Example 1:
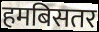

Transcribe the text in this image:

हमबिसतर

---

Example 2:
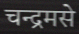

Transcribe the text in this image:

चन्द्रमसे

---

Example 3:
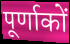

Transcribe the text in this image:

पूर्णाकों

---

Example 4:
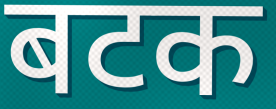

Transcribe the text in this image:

बटक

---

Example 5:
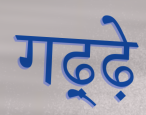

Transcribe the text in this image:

गढ़्ढ़े